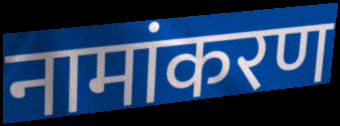
नामांकरण